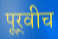
पूर्वीच